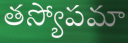
తస్యోపమా